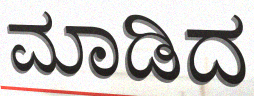
ಮಾಡಿದ